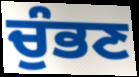
ਚੁੰਭਣ